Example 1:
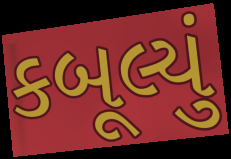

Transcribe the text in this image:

કબૂલ્યું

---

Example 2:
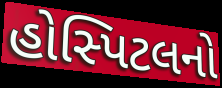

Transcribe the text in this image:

હોસ્પિટલનો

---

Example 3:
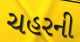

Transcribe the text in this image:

ચહરની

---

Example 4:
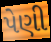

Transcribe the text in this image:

પેણી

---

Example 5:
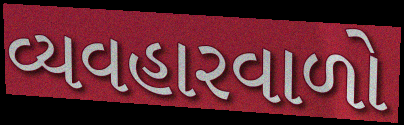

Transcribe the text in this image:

વ્યવહારવાળો